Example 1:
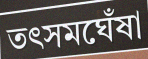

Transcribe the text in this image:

তৎসমঘেঁষা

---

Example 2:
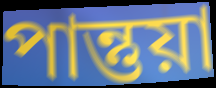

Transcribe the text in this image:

পান্তুয়া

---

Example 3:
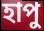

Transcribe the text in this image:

হাপু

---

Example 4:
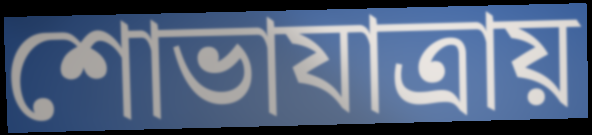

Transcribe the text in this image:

শোভাযাত্রায়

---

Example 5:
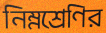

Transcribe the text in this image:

নিম্নশ্রেণির